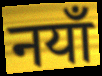
नयाँ